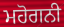
ਮਹੋਗਨੀ